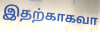
இதற்காகவா